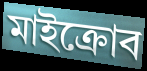
মাইক্রোব